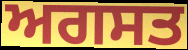
ਅਗਸਤ